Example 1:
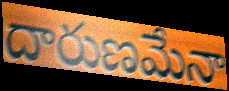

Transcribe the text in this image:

దారుణమేనా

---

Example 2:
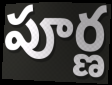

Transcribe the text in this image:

పూర్ణ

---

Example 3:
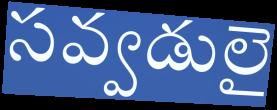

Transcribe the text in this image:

సవ్వడులై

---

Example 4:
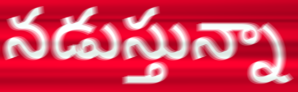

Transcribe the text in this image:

నడుస్తున్నా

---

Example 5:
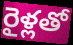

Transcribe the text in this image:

రైళ్లతో